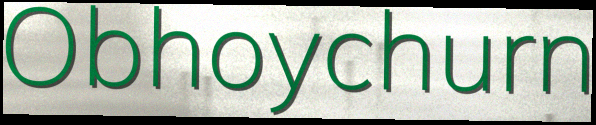
Obhoychurn